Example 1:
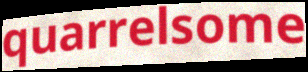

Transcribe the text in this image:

quarrelsome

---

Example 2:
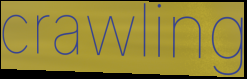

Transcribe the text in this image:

crawling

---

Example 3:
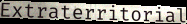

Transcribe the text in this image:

Extraterritorial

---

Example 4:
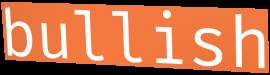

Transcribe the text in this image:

bullish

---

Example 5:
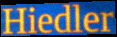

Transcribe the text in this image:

Hiedler